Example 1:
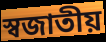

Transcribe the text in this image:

স্বজাতীয়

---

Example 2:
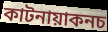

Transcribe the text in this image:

কাটনায়াকনচ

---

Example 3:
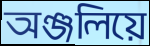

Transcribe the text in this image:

অঞ্জলিয়ে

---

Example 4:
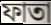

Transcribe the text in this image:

ফাতা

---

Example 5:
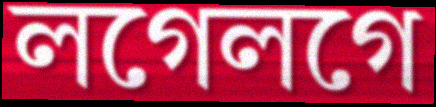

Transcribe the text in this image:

লগেলগে